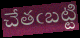
చేతఁబట్టి